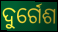
ଦୁର୍ଗେଶ